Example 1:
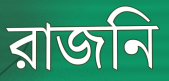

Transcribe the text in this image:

রাজনি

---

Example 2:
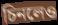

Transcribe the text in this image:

চিনলেও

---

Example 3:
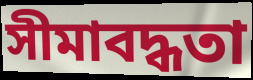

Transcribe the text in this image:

সীমাবদ্ধতা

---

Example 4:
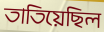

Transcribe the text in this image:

তাতিয়েছিল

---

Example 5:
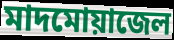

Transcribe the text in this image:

মাদমোয়াজেল